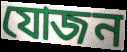
যোজন